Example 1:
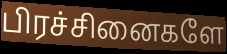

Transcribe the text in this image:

பிரச்சினைகளே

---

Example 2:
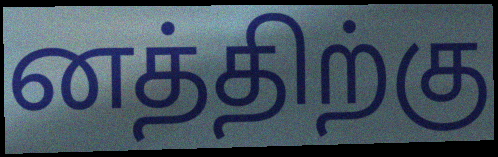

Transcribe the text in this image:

னத்திற்கு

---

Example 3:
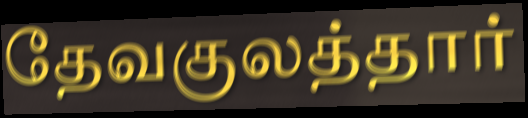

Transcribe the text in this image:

தேவகுலத்தார்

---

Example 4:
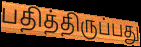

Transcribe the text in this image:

பதித்திருப்பது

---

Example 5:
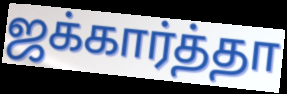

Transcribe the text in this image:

ஜக்கார்த்தா